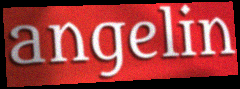
angelin